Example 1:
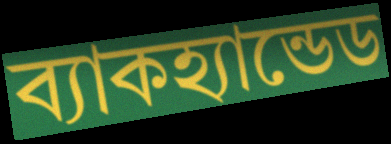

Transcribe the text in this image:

ব্যাকহ্যান্ডেড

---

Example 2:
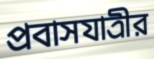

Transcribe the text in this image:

প্রবাসযাত্রীর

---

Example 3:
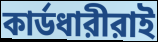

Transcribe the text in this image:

কার্ডধারীরাই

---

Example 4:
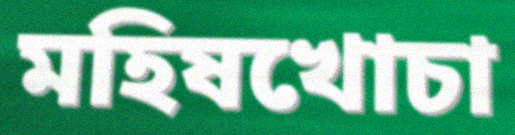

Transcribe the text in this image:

মহিষখোচা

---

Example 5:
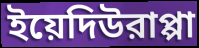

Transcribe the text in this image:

ইয়েদিউরাপ্পা